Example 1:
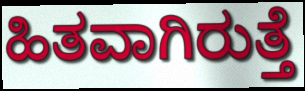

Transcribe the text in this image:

ಹಿತವಾಗಿರುತ್ತೆ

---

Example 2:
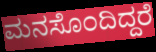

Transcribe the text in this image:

ಮನಸೊಂದಿದ್ದರೆ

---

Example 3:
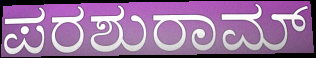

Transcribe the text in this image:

ಪರಶುರಾಮ್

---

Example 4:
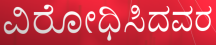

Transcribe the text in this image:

ವಿರೋಧಿಸಿದವರ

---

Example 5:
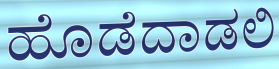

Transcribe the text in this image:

ಹೊಡೆದಾಡಲಿ